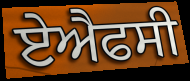
ਏਐਫਸੀ